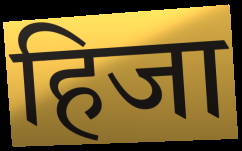
हिजा